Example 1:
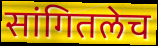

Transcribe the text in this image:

सांगितलेच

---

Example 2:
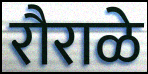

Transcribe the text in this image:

रौराळे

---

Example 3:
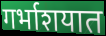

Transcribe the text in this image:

गर्भाशयात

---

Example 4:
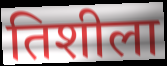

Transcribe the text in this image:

तिशीला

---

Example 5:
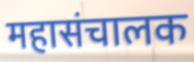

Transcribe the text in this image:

महासंचालक